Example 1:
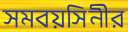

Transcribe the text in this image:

সমবয়সিনীর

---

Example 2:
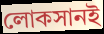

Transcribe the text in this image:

লোকসানই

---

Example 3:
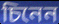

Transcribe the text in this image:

চিনেন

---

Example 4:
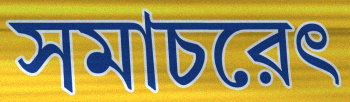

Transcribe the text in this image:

সমাচরেৎ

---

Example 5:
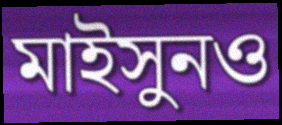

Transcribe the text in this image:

মাইসুনও